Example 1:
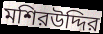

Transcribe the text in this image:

মশিরউদ্দির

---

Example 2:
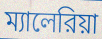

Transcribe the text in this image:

ম্যালেরিয়া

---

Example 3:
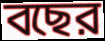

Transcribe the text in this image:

বছের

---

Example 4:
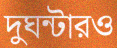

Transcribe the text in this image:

দুঘন্টারও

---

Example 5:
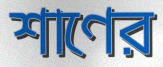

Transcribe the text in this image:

শাণের